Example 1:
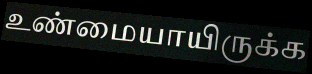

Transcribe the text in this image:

உண்மையாயிருக்க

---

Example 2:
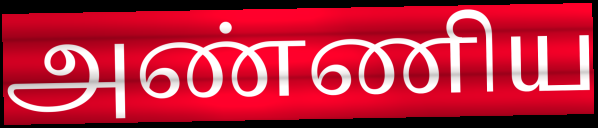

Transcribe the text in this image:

அண்ணிய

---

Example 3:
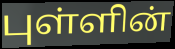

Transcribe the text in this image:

புள்ளின்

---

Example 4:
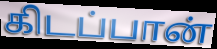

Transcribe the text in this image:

கிடப்பான்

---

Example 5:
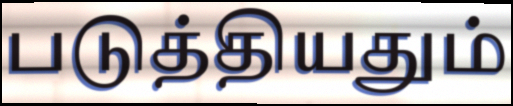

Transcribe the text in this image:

படுத்தியதும்